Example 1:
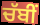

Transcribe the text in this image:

ਚੱਬੀਂ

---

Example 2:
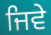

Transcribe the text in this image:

ਜਿਵੇ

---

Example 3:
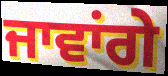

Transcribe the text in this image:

ਜਾਵਾਂਗੇ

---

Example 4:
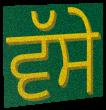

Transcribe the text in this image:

ਵੱਸੇ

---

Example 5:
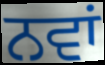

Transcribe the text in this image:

ਨਵਾਂ